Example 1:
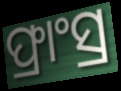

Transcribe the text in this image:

ଫ୍ରାଂସ୍ର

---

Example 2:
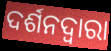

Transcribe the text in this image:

ଦର୍ଶନଦ୍ୱାରା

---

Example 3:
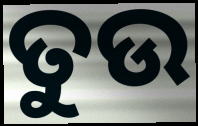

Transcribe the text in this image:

ତୁଉ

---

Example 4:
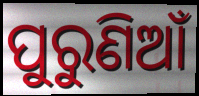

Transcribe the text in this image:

ପୁରୁଣିଆଁ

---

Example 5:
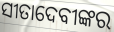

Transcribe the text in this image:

ସୀତାଦେବୀଙ୍କର